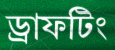
ড্রাফটিং